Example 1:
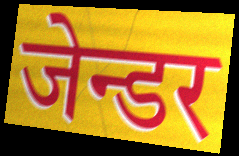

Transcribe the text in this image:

जेन्डर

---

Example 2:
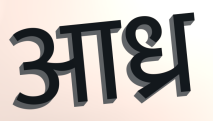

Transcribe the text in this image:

आध्र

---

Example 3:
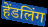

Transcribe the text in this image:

हेंडलिंग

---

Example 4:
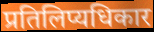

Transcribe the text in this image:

प्रतिलिप्यधिकार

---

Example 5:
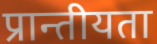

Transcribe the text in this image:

प्रान्तीयता